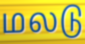
மலடு